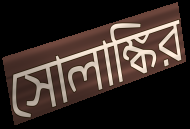
সোলাঙ্কির